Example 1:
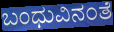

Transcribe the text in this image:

ಬಂಧುವಿನಂತೆ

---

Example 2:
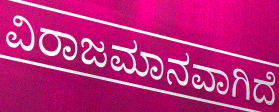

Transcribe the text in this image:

ವಿರಾಜಮಾನವಾಗಿದೆ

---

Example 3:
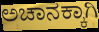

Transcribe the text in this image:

ಅಚಾನಕ್ಕಾಗಿ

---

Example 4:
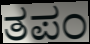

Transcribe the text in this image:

ತಪಂ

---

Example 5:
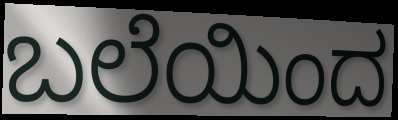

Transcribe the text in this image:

ಬಲೆಯಿಂದ